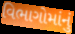
વિભાગોમાંનું